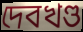
দেবখণ্ড